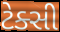
ટેક્સી